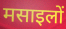
मसाइलों